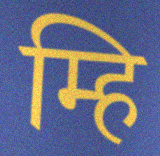
म्हि